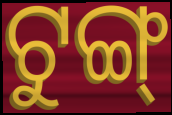
ଟୁଙ୍ଗ୍